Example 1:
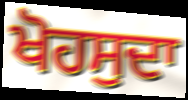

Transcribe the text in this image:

ਖੋਹਸੁਦਾ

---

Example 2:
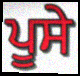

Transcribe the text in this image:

ਪੂਸੇ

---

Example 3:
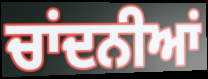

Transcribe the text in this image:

ਚਾਂਦਨੀਆਂ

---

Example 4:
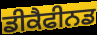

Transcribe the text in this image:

ਡੀਕੈਫੀਨਡ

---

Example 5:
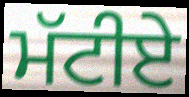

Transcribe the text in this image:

ਮੱਟੀਏ